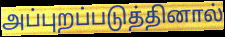
அப்புறப்படுத்தினால்